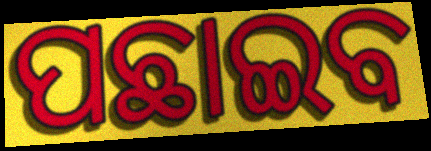
ପଛାଇବ